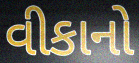
વીકાનો